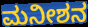
ಮನೀಶನ